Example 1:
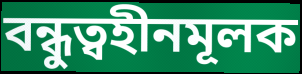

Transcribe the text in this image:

বন্ধুত্বহীনমূলক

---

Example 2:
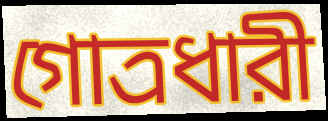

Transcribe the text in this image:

গোত্রধারী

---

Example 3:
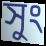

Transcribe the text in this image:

সুং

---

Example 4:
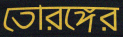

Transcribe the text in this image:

তোরঙ্গের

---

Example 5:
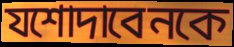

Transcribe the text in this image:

যশোদাবেনকে